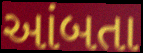
આંબતા